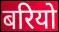
बरियो